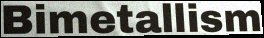
Bimetallism